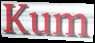
Kum